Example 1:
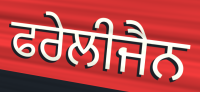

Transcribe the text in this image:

ਫਰੇਲੀਜੈਨ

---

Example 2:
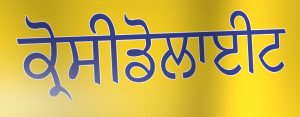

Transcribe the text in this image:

ਕ੍ਰੋਸੀਡੋਲਾਈਟ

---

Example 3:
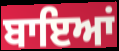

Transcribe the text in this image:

ਬਾਇਆਂ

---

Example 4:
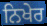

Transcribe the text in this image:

ਨਿਖੇਰ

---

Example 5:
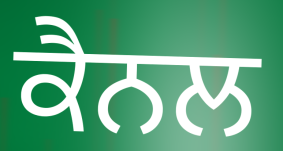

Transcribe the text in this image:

ਕੈਨਲ